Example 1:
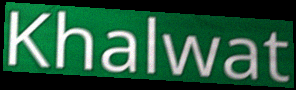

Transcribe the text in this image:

Khalwat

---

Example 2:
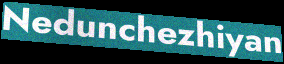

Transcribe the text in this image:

Nedunchezhiyan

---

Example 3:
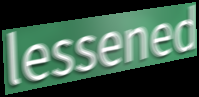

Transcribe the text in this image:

lessened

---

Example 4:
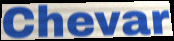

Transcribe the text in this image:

Chevar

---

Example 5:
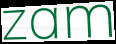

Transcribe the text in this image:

zam